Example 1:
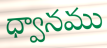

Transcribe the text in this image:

ధ్వానము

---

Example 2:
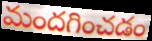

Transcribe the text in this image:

మందగించడం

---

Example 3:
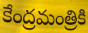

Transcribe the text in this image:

కేంద్రమంత్రికి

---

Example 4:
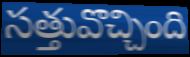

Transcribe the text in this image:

సత్తువొచ్చింది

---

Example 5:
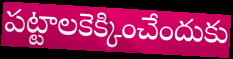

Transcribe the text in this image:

పట్టాలకెక్కించేందుకు